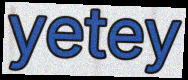
yetey